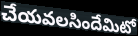
చేయవలసిందేమిటో